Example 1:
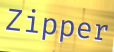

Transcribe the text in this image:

Zipper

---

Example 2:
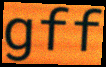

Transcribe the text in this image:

gff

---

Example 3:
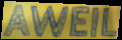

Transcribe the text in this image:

AWEIL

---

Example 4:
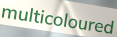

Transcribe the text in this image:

multicoloured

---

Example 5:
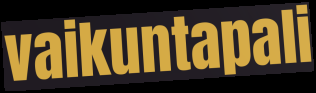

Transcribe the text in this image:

vaikuntapali